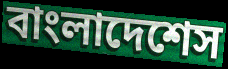
বাংলাদেশেস